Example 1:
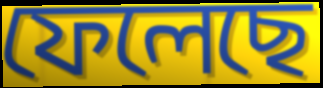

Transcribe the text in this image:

ফেলেছে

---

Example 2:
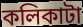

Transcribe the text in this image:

কলিকাটা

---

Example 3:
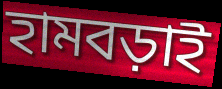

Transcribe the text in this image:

হামবড়াই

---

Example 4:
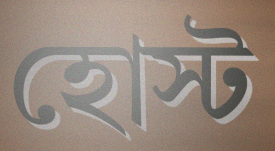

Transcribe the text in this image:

হোস্ট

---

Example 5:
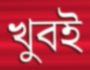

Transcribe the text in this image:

খুবই